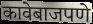
कावेबाजपणे